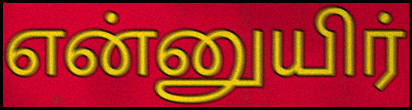
என்னுயிர்